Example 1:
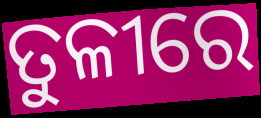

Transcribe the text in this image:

ତୁଳୀରେ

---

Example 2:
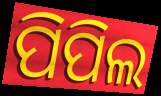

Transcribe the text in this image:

ପିପିଲ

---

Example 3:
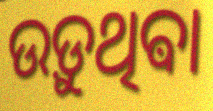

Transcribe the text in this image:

ଉଡ଼ୁଥିଵା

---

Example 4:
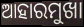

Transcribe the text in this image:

ଆହାରମୁଖା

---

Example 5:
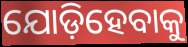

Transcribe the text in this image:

ଯୋଡ଼ିହେବାକୁ